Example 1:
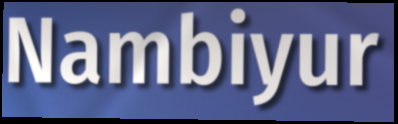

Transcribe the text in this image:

Nambiyur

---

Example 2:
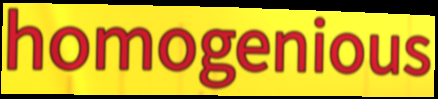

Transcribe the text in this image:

homogenious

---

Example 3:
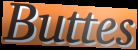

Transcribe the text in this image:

Buttes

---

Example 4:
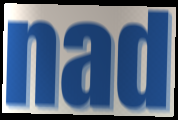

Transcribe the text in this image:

nad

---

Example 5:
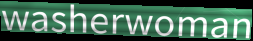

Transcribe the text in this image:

washerwoman